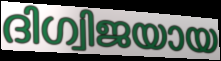
ദിഗ്വിജയായ